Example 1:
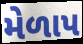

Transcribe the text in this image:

મેળાપ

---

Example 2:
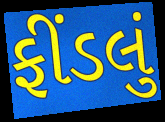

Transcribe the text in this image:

ફીંડલું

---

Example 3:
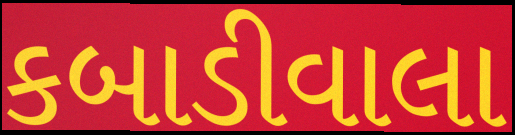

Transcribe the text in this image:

કબાડીવાલા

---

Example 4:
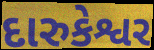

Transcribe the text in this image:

દારુકેશ્વર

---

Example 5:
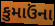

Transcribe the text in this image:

કુમાઉંના